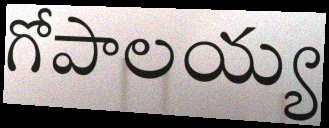
గోపాలయ్య